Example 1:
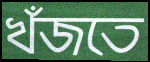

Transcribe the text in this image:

খঁজতে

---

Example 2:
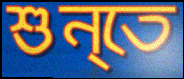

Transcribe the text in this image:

শুন্‌তে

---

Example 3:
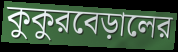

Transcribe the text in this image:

কুকুরবেড়ালের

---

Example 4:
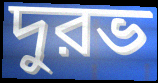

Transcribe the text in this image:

দুরভ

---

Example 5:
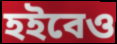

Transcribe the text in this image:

হইবেও